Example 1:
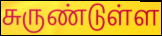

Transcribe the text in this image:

சுருண்டுள்ள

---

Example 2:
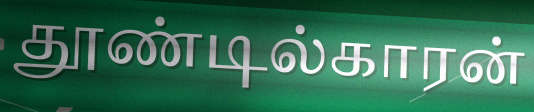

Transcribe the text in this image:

தூண்டில்காரன்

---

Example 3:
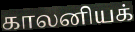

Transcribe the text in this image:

காலனியக்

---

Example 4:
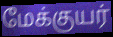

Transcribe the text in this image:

மேக்குயர்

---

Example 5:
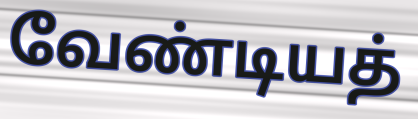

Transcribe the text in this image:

வேண்டியத்